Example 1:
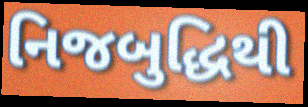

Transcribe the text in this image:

નિજબુદ્ધિથી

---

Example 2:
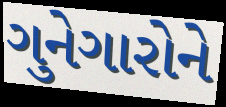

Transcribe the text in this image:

ગુનેગારોને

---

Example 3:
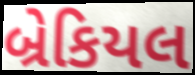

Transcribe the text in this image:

બ્રેકિયલ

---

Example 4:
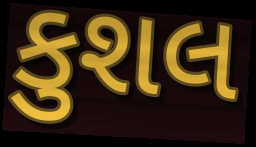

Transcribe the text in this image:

કુશલ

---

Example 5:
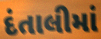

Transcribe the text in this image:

દંતાલીમાં